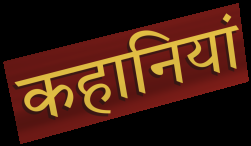
कहानियां